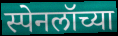
स्पेनलॉच्या